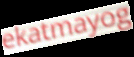
ekatmayog